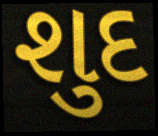
શુદ